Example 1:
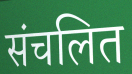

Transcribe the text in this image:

संचलित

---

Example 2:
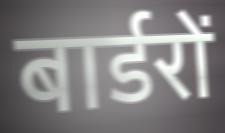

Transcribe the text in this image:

बार्डरों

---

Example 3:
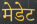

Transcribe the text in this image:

मेडेट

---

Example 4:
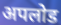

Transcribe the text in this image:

अपलोड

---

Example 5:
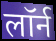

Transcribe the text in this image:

लॉर्न